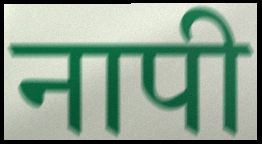
नापी